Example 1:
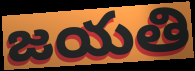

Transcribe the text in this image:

జయతి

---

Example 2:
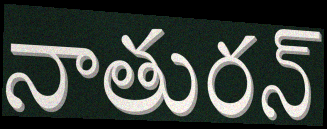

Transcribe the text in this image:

నాతురన్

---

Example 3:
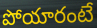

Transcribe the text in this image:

పోయారంటే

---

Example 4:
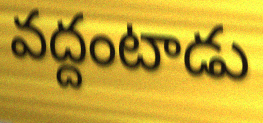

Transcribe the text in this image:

వద్దంటాడు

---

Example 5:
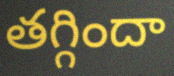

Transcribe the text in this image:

తగ్గిందా